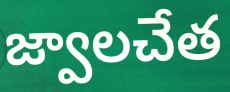
జ్వాలచేత